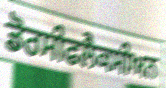
ਡੋਰਸੀਫਲੈਕਸੀਅਨ